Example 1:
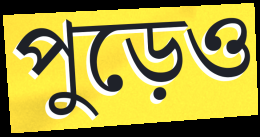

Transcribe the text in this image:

পুড়েও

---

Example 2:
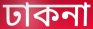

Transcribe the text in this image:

ঢাকনা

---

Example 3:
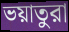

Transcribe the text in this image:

ভয়াতুরা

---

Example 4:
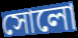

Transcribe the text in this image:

সোলো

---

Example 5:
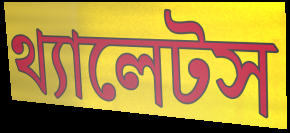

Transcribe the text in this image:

থ্যালেটস